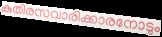
കുതിരസവാരിക്കാരനോടും